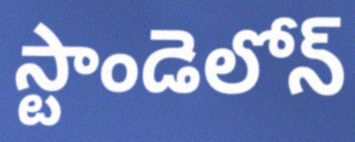
స్టాండెలోన్